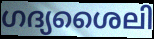
ഗദ്യശൈലി